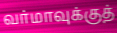
வர்மாவுக்குத்